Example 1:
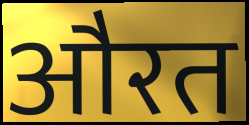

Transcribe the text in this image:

औरत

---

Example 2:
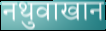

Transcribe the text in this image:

नथुवाखान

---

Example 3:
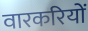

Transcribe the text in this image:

वारकरियों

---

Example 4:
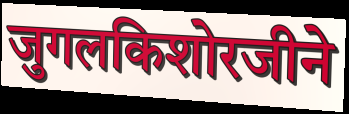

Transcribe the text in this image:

जुगलकिशोरजीने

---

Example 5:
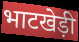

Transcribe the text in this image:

भाटखेड़ी